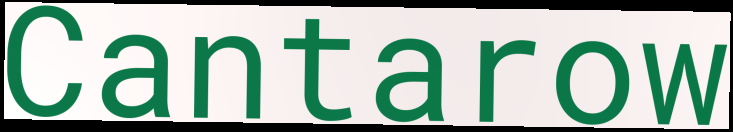
Cantarow